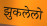
झुकलेलो